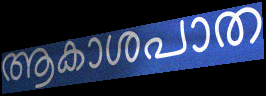
ആകാശപാത